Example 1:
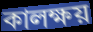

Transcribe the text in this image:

কালক্ষয়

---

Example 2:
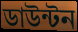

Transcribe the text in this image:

ডাউন্টন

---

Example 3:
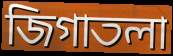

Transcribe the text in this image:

জিগাতলা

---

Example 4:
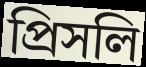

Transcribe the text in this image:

প্রিসলি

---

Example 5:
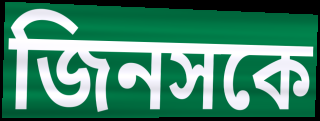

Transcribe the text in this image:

জিনসকে